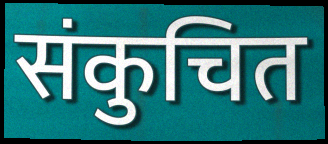
संकुचित